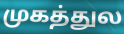
முகத்துல